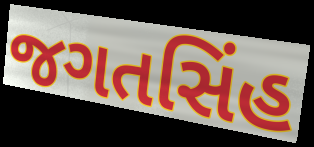
જગતસિંહ